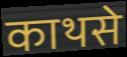
काथसे